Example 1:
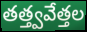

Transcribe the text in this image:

తత్త్వవేత్తల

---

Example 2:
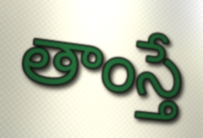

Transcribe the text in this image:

తాంస్తే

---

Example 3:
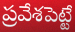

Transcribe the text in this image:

ప్రవేశపెట్టే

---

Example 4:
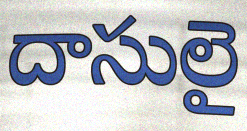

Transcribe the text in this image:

దాసులై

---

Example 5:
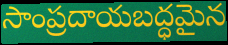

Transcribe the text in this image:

సాంప్రదాయబద్ధమైన